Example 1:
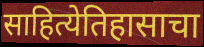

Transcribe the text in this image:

साहित्येतिहासाचा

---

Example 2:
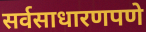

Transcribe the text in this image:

सर्वसाधारणपणे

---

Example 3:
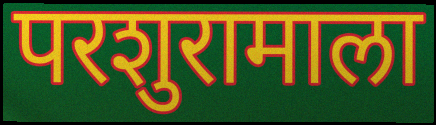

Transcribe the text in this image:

परशुरामाला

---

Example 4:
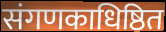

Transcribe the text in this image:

संगणकाधिष्ठित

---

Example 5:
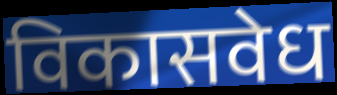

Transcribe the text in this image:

विकासवेध